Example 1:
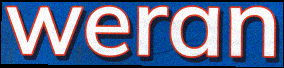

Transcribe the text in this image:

weran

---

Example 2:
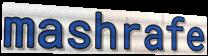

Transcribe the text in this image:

mashrafe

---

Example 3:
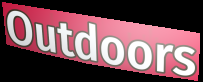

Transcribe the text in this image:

Outdoors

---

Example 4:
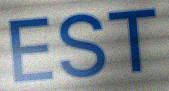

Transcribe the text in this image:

EST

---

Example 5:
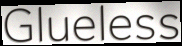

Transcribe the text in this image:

Glueless